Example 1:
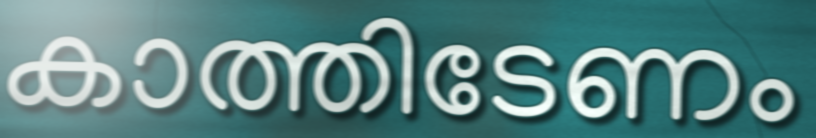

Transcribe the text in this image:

കാത്തിടേണം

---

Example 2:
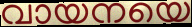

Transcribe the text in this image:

വായനയെ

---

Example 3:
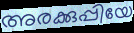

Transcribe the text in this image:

അരക്കുപ്പിയേ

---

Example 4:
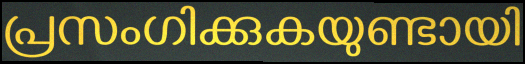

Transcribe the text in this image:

പ്രസംഗിക്കുകയുണ്ടായി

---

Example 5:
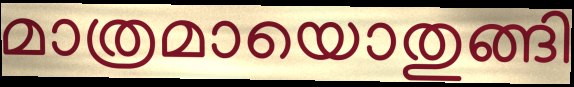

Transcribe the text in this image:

മാത്രമായൊതുങ്ങി